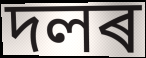
দলৰ